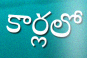
కార్లలో